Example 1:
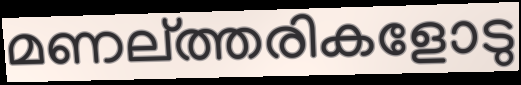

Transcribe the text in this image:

മണല്ത്തരികളോടു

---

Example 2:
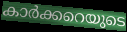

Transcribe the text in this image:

കാർക്കറെയുടെ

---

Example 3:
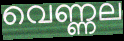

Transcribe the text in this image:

വെണ്ണല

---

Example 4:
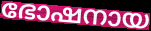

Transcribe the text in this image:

ഭോഷനായ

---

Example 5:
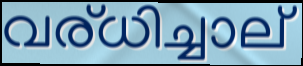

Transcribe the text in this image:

വര്ധിച്ചാല്